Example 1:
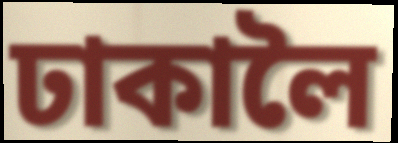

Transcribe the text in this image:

ঢাকালৈ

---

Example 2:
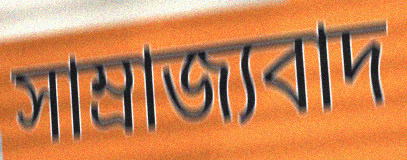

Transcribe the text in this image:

সাম্ৰাজ্যবাদ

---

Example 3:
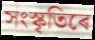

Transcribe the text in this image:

সংস্কৃতিৰে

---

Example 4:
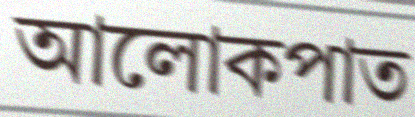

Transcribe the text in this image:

আলোকপাত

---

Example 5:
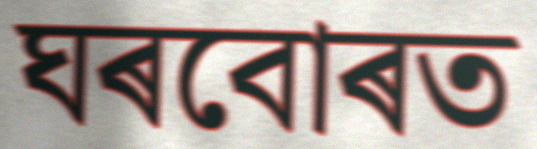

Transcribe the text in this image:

ঘৰবোৰত